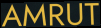
AMRUT